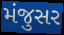
મંજુસર